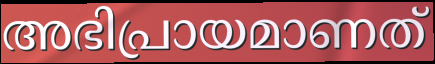
അഭിപ്രായമാണത്